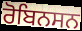
ਰੋਬਿਨਸਨ